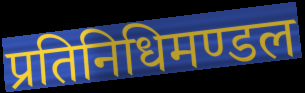
प्रतिनिधिमण्डल